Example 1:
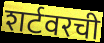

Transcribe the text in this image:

शर्टवरची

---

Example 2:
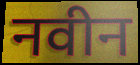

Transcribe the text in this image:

नवीन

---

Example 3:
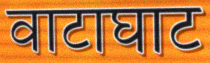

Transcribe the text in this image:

वाटाघाट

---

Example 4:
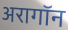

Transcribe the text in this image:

अरागॉन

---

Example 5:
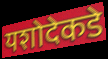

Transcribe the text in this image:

यशोदेकडे